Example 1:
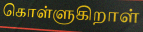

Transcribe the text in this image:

கொள்ளுகிறாள்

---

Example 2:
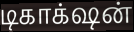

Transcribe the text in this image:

டிகாக்‌ஷன்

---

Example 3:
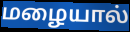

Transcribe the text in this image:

மழையால்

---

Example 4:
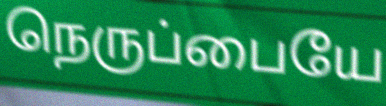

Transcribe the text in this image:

நெருப்பையே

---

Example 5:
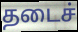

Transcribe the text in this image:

தடைச்